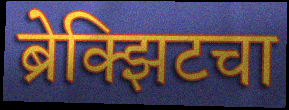
ब्रेक्झिटचा